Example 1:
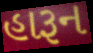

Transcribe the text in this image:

હારૂન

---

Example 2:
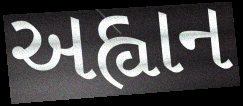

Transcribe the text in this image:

અહ્વાન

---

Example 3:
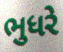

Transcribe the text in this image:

ભુધરે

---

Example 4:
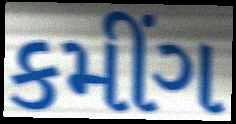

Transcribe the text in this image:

કમીંગ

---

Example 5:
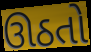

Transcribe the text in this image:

ઊઠતો